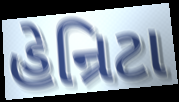
હેન્રિટા